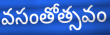
వసంతోత్సవం